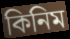
কিনিম